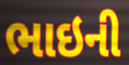
ભાઇની